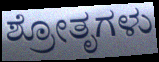
ಶ್ರೋತೃಗಳು